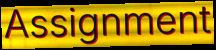
Assignment